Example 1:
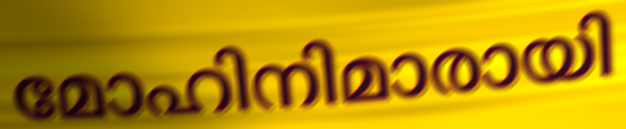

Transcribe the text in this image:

മോഹിനിമാരായി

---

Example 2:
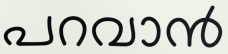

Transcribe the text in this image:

പറവാൻ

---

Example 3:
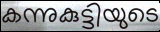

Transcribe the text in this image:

കന്നുകുട്ടിയുടെ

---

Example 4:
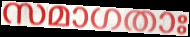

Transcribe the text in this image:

സമാഗതാഃ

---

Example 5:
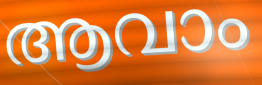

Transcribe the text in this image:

ആവാം